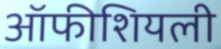
ऑफीशियली